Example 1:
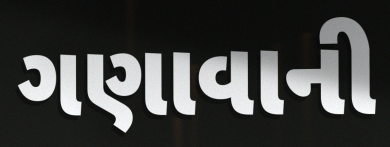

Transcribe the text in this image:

ગણાવાની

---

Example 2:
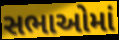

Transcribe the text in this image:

સભાઓમાં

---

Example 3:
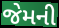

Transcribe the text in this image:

જેમની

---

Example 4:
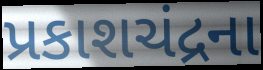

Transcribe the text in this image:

પ્રકાશચંદ્રના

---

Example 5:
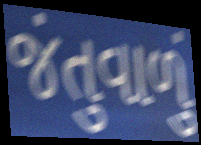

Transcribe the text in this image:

જંતુવાળું